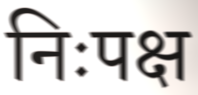
निःपक्ष